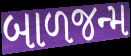
બાળજન્મ